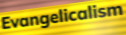
Evangelicalism